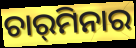
ଚାର୍‌ମିନାର